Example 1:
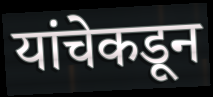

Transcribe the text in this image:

यांचेकडून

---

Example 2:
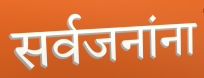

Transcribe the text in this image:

सर्वजनांना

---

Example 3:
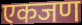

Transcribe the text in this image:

एकजण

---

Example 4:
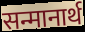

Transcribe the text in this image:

सन्मानार्थ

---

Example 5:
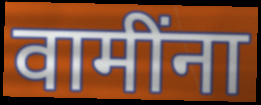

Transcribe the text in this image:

वामींना